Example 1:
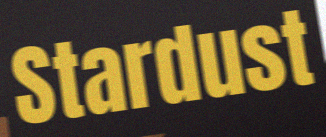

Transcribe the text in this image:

Stardust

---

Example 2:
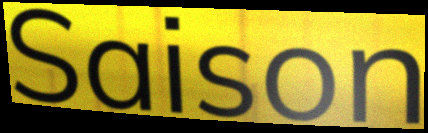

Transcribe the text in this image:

Saison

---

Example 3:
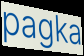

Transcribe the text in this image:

pagka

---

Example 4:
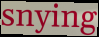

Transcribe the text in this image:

snying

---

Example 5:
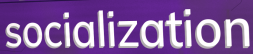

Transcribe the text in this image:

socialization